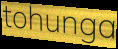
tohunga